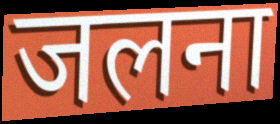
जलना